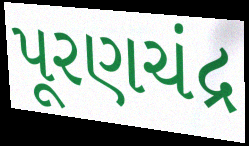
પૂરણચંદ્ર